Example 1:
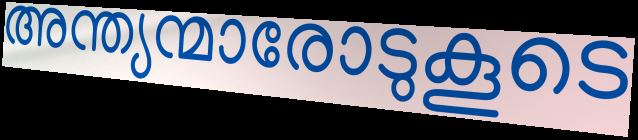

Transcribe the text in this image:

അന്ത്യന്മാരോടുകൂടെ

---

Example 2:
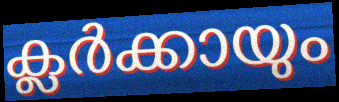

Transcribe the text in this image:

ക്ലർക്കായും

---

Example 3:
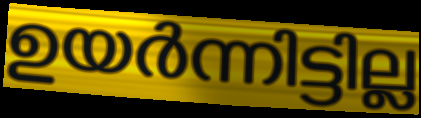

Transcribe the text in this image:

ഉയർന്നിട്ടില്ല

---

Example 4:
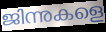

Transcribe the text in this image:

ജിന്നുകളെ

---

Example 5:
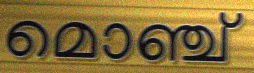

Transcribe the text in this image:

മൊഞ്ച്